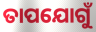
ତାପଯୋଗୁଁ